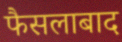
फैसलाबाद